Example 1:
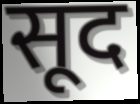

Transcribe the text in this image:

सूद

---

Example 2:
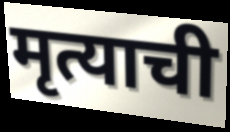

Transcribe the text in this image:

मृत्याची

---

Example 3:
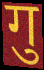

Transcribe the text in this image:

गु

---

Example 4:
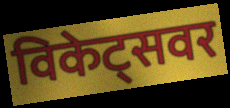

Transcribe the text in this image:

विकेट्सवर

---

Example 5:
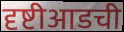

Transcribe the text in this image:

दृष्टीआडची